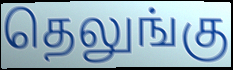
தெலுங்கு